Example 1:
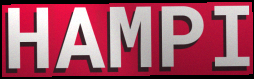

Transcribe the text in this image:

HAMPI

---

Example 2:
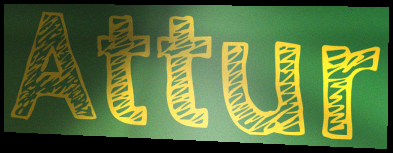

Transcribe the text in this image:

Attur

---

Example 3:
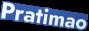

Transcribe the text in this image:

Pratimao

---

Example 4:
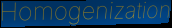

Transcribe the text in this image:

Homogenization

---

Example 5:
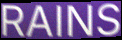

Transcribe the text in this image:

RAINS